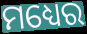
ମଧ୍ୟେର